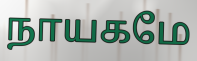
நாயகமே